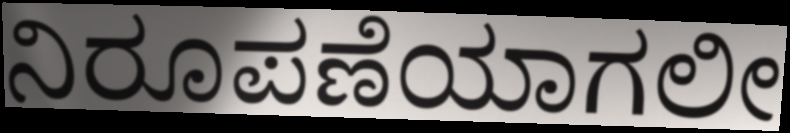
ನಿರೂಪಣೆಯಾಗಲೀ